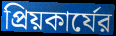
প্রিয়কার্যের